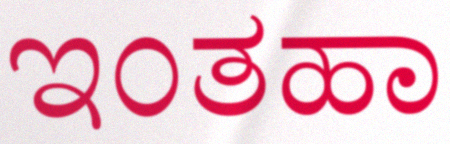
ಇಂತಹಾ